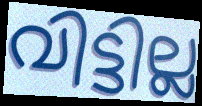
വിട്ടില്ല